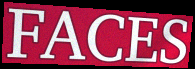
FACES